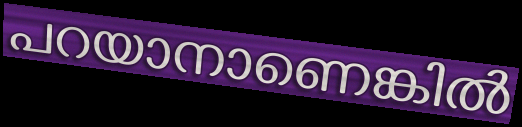
പറയാനാണെങ്കിൽ